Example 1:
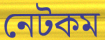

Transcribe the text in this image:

নেটকম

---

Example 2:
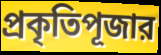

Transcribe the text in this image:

প্রকৃতিপূজার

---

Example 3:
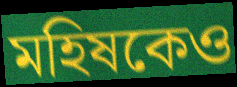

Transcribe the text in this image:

মহিষকেও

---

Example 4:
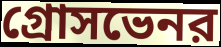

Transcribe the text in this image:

গ্রোসভেনর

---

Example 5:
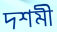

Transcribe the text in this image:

দশমী